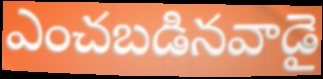
ఎంచబడినవాడై